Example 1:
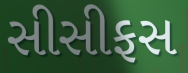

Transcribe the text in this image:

સીસીફસ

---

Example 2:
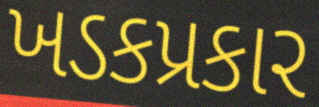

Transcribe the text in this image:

ખડકપ્રકાર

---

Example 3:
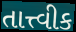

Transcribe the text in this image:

તાત્ત્વીક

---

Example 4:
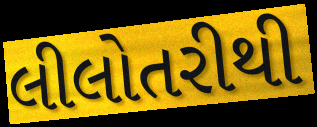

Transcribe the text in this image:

લીલોતરીથી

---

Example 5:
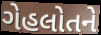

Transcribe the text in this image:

ગેહલોતને